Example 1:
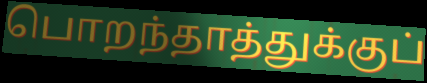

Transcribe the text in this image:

பொறந்தாத்துக்குப்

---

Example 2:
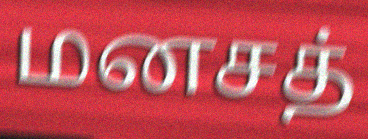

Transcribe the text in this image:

மனசத்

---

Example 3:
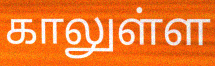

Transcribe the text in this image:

காலுள்ள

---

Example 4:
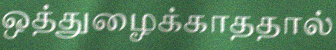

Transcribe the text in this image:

ஒத்துழைக்காததால்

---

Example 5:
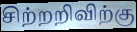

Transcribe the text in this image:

சிற்றறிவிற்கு